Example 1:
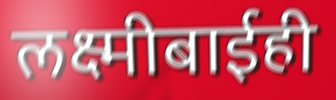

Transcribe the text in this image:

लक्ष्मीबाईही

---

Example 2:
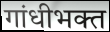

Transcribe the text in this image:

गांधीभक्त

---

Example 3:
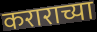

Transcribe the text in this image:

कराराच्या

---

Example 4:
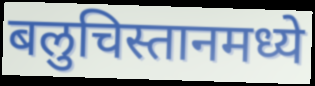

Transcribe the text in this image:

बलुचिस्तानमध्ये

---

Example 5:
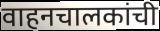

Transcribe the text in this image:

वाहनचालकांची